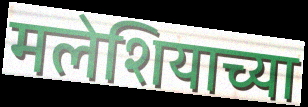
मलेशियाच्या